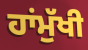
ਹਾਂਮੁੱਖੀ